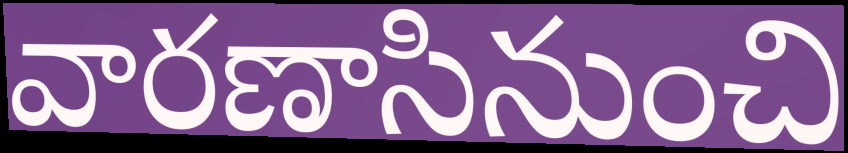
వారణాసినుంచి